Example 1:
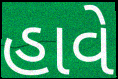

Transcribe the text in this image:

હાવે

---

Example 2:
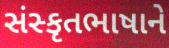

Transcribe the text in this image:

સંસ્કૃતભાષાને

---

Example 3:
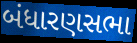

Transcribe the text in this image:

બંધારણસભા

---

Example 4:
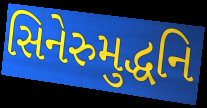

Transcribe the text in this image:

સિનેરુમુદ્ધનિ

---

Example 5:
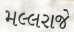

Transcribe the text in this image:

મલ્લરાજે